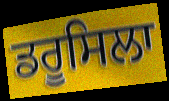
ਡਰੂਸਿਲਾ